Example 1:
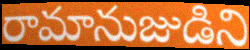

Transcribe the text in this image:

రామానుజుడిని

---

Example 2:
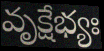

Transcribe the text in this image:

వృక్షేభ్యః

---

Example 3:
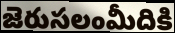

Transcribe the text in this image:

జెరుసలంమీదికి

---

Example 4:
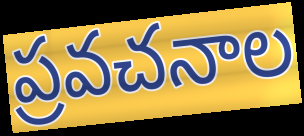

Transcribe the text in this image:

ప్రవచనాల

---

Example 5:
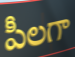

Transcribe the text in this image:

పీలగా